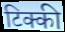
टिक्‍की